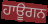
ਹਾਊਗਨ